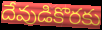
దేవుడికొరకు